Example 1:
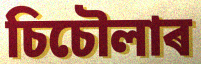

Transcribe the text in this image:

চিচৌলাৰ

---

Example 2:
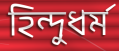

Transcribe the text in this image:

হিন্দুধৰ্ম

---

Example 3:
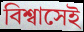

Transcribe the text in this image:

বিশ্বাসেই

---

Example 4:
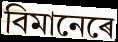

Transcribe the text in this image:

বিমানেৰে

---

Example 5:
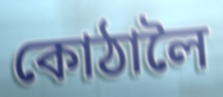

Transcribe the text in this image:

কোঠালৈ